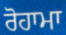
ਰੋਹਾਮਾ